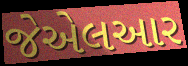
જેએલઆર